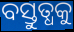
ବସ୍ତୁତ୍ଧକୁ